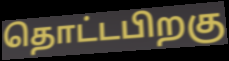
தொட்டபிறகு